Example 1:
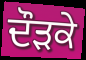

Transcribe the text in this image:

ਦੌੜਕੇ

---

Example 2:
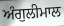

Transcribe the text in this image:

ਅੰਗੁਲੀਮਾਲ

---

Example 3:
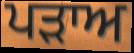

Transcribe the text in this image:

ਪਡ਼ਾਅ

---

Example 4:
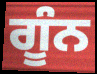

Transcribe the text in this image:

ਗੂੰਨ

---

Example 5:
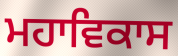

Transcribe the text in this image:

ਮਹਾਵਿਕਾਸ